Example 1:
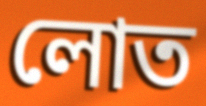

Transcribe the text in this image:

লোত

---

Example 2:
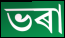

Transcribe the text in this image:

ভৰা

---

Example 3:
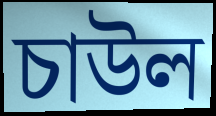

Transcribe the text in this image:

চাউল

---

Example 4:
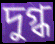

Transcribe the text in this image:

দুগ্ধ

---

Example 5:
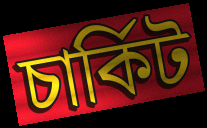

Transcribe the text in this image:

চাৰ্কিট